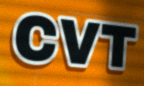
CVT